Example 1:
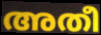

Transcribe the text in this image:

അതീ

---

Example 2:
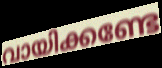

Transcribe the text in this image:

വായിക്കണ്ടേ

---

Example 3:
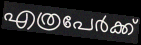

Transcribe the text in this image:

എത്രപേർക്ക്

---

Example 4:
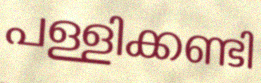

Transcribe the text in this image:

പള്ളിക്കണ്ടി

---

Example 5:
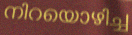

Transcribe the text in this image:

നിറയൊഴിച്ച